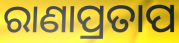
ରାଣାପ୍ରତାପ